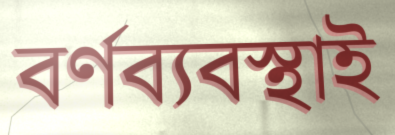
বর্ণব্যবস্থাই